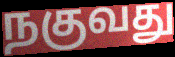
நகுவது